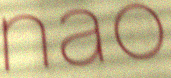
nao